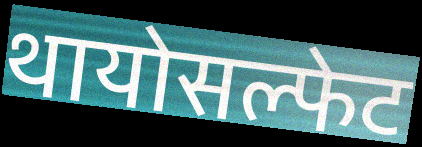
थायोसल्फेट